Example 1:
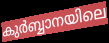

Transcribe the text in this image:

കുർബ്ബാനയിലെ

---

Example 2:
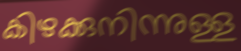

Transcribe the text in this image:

കിഴക്കുനിന്നുള്ള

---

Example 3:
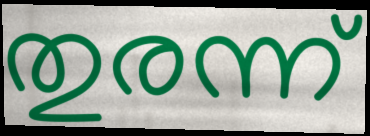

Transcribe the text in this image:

തുരന്ന്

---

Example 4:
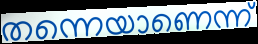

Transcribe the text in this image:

തന്നെയാണെന്ന്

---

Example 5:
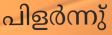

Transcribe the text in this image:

പിളർന്നു്